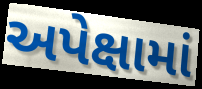
અપેક્ષામાં